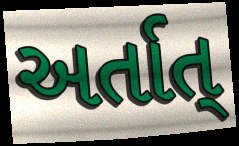
અર્તાત્